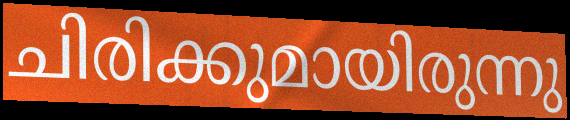
ചിരിക്കുമായിരുന്നു